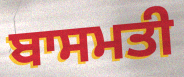
ਬਾਸਮਤੀ